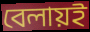
বেলায়ই